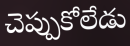
చెప్పుకోలేడు